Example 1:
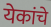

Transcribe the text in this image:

येकांचे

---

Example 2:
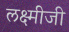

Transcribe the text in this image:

लक्ष्मीजी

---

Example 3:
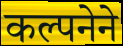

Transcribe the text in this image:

कल्पनेने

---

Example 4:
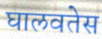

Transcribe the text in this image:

घालवतेस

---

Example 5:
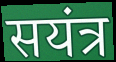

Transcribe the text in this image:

सयंत्र